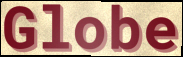
Globe